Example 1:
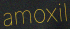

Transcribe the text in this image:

amoxil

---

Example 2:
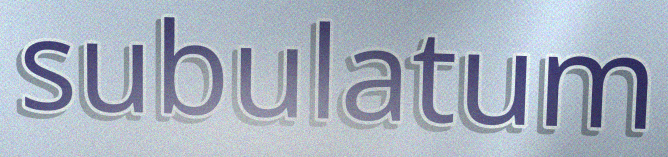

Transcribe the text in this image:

subulatum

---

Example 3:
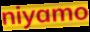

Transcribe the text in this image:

niyamo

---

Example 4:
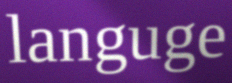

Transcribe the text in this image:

languge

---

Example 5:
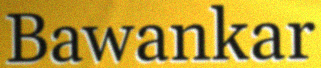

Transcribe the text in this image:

Bawankar